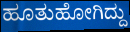
ಹೂತುಹೋಗಿದ್ದು